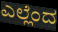
ಎಲ್ಲೆಂದ